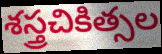
శస్త్రచికిత్సల